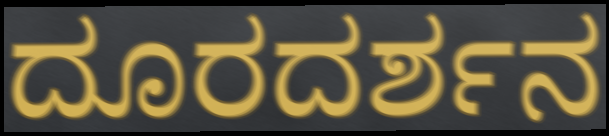
ದೂರದರ್ಶನ